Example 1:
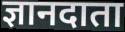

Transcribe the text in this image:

ज्ञानदाता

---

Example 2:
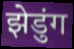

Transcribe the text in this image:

झेडुंग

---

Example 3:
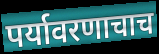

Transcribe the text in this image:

पर्यावरणाचाच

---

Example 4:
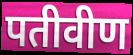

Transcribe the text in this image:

पतीवीण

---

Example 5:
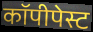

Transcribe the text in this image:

कॉपीपेस्ट